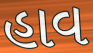
હાવ